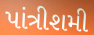
પાંત્રીશમી